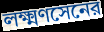
লক্ষ্মণসেনের